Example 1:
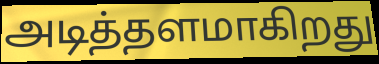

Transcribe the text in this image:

அடித்தளமாகிறது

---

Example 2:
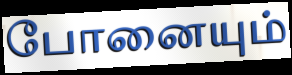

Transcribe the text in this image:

போனையும்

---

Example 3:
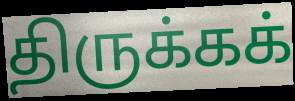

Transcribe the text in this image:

திருக்கக்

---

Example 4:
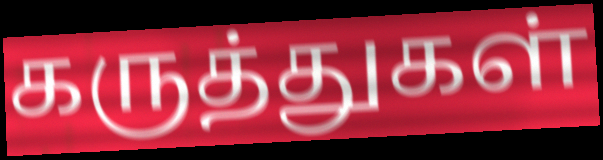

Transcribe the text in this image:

கருத்துகள்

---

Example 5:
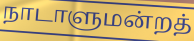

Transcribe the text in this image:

நாடாளுமன்றத்